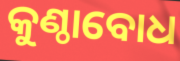
କୁଣ୍ଠାବୋଧ